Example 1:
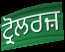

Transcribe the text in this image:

ਟ੍ਰੋਲਰਜ਼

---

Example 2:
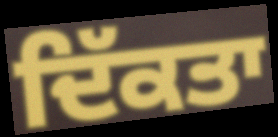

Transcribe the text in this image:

ਦਿੱਕਤਾ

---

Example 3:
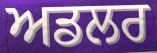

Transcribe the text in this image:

ਅਡਲਰ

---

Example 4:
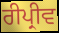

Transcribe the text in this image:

ਰੀਪ੍ਰੀਵ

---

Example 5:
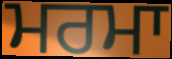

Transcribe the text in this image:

ਮਰਮਾ